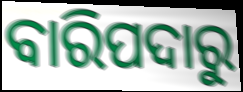
ବାରିପଦାରୁ